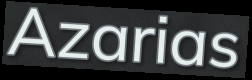
Azarias